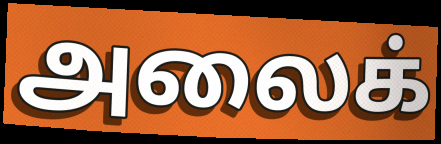
அலைக்